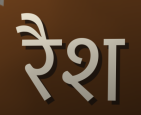
रैश